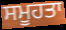
ਸਮੂਹਤਾ